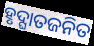
ହୃଦ୍ଘାତଜନିତ